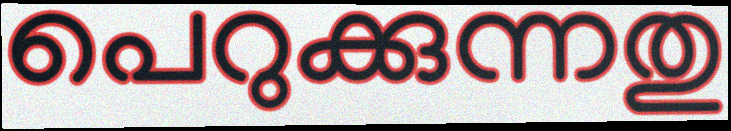
പെറുക്കുന്നതു